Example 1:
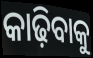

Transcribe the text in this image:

କାଢ଼ିବାକୁ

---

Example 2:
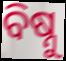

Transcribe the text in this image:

ବିଷ୍ନୁ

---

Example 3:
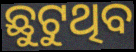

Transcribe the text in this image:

ଛୁଟୁଥିବ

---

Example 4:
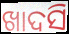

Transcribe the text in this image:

ଖାଦସି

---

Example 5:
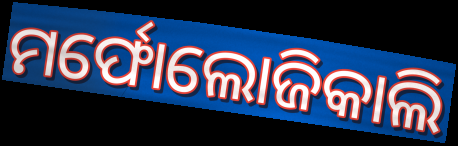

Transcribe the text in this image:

ମର୍ଫୋଲୋଜିକାଲି